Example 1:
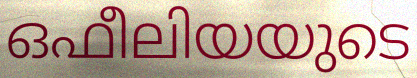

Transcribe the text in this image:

ഒഫീലിയയുടെ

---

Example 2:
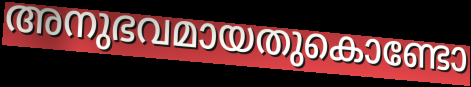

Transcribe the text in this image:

അനുഭവമായതുകൊണ്ടോ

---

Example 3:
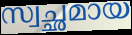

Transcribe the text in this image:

സ്വച്ഛമായ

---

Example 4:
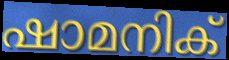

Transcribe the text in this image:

ഷാമനിക്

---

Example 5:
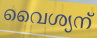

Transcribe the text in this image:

വൈശ്യന്